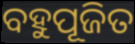
ବହୁପୂଜିତ